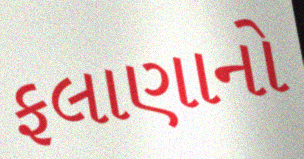
ફલાણાનો